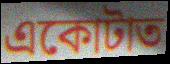
একোটাত